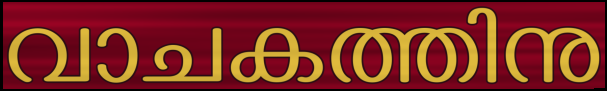
വാചകത്തിനു